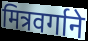
मित्रवर्गाने